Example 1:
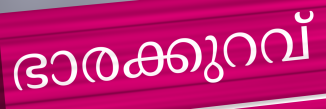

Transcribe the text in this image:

ഭാരക്കുറവ്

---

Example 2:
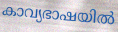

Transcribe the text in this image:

കാവ്യഭാഷയിൽ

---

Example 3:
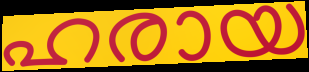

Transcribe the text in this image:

ഹരായ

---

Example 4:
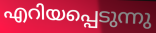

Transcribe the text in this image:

എറിയപ്പെടുന്നു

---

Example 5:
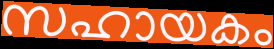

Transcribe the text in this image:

സഹായകം